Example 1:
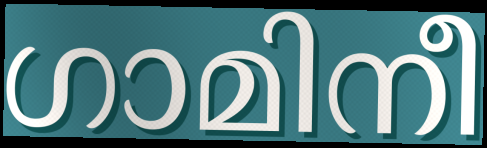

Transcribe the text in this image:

ഗാമിനീ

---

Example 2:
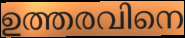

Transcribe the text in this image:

ഉത്തരവിനെ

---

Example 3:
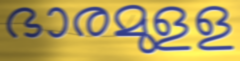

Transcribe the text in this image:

ഭാരമുളള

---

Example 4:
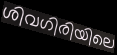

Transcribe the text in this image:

ശിവഗിരിയിലെ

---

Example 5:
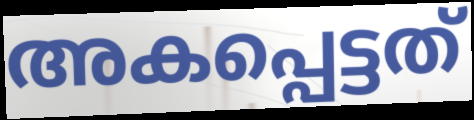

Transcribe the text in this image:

അകപ്പെട്ടത്